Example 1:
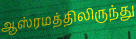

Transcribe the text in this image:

ஆஸ்ரமத்திலிருந்து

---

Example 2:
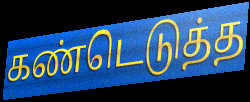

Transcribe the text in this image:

கண்டெடுத்த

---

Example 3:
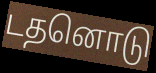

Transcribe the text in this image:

டதனொடு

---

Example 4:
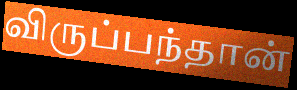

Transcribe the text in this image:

விருப்பந்தான்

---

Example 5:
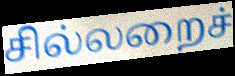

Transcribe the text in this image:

சில்லறைச்